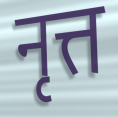
नृत्त